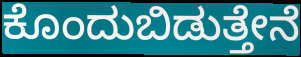
ಕೊಂದುಬಿಡುತ್ತೇನೆ